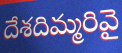
దేశదిమ్మరివై